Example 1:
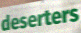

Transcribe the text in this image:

deserters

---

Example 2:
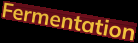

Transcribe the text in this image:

Fermentation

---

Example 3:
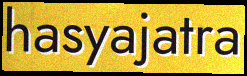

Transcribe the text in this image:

hasyajatra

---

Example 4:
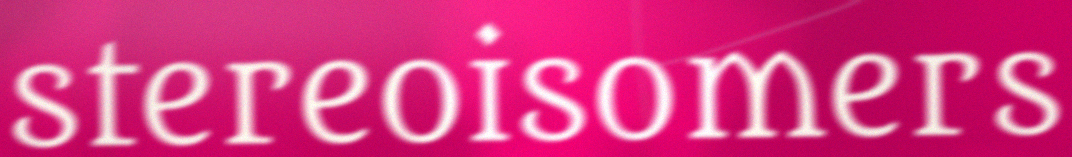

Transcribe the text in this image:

stereoisomers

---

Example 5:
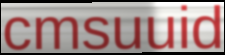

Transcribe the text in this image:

cmsuuid